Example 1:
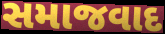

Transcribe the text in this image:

સમાજવાદ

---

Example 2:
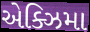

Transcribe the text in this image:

એક્ઝિમા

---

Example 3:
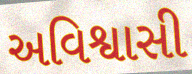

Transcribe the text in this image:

અવિશ્વાસી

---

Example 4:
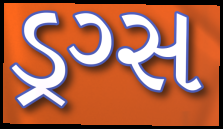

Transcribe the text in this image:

ડ્રગ્સ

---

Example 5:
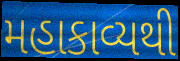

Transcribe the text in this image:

મહાકાવ્યથી